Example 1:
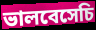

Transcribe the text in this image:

ভালবেসেচি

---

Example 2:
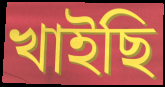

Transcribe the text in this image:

খাইছি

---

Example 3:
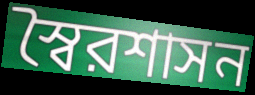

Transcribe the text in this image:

স্বৈরশাসন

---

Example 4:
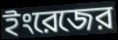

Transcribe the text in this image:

ইংরেজের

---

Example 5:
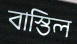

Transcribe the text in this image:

বাস্তিল